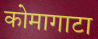
कोमागाटा